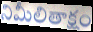
నిమీలితాక్షం